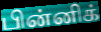
பின்னிக்